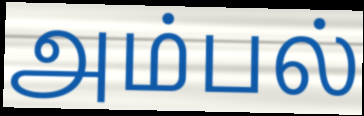
அம்பல்